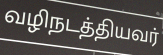
வழிநடத்தியவர்